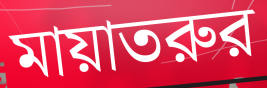
মায়াতরুর